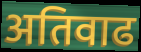
अतिवाढ